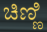
ಚಿಣ್ಣಿ